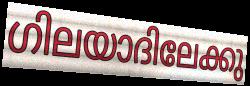
ഗിലയാദിലേക്കു